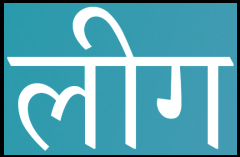
लीग